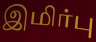
இமிர்பு